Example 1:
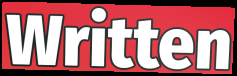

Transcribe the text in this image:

Written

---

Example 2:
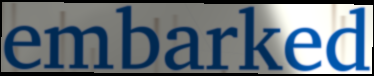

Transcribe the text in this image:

embarked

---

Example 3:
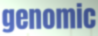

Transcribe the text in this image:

genomic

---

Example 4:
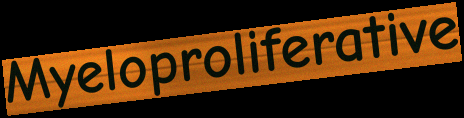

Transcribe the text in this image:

Myeloproliferative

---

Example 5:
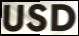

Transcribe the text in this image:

USD